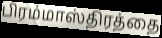
பிரம்மாஸ்திரத்தை